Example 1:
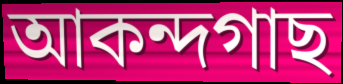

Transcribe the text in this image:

আকন্দগাছ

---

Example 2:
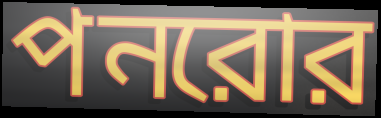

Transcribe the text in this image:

পনরোর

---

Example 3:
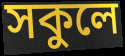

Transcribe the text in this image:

সকুলে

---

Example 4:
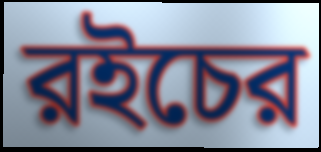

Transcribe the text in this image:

রইচের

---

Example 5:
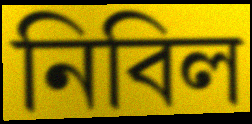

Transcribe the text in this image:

নিবিল